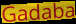
Gadaba